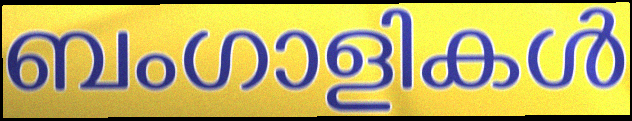
ബംഗാളികൾ